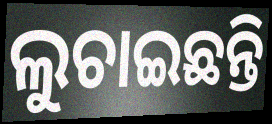
ଲୁଚାଇଛନ୍ତି